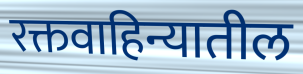
रक्तवाहिन्यातील